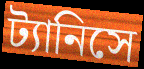
ট্যানিসে